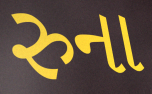
રુના